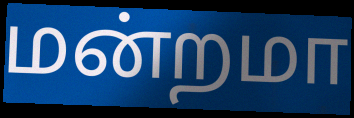
மன்றமா